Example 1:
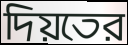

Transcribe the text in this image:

দিয়তের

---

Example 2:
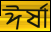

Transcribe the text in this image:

ঈর্ষা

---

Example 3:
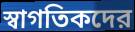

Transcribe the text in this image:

স্বাগতিকদের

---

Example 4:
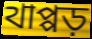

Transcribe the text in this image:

থাপ্পড়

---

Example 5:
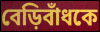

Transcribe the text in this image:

বেড়িবাঁধকে